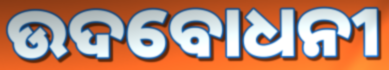
ଉଦବୋଧନୀ